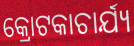
କ୍ରୋଟକାଚାର୍ଯ୍ୟ